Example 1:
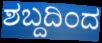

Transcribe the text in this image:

ಶಬ್ದದಿಂದ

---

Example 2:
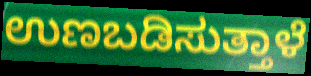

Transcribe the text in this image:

ಉಣಬಡಿಸುತ್ತಾಳೆ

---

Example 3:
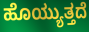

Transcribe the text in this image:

ಹೊಯ್ಯುತ್ತದೆ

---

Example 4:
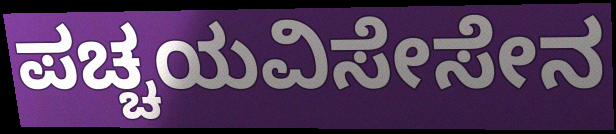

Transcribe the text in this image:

ಪಚ್ಚಯವಿಸೇಸೇನ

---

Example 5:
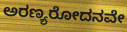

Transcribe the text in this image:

ಅರಣ್ಯರೋದನವೇ